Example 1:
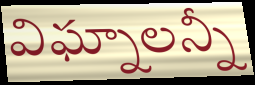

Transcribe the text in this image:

విఘ్నాలన్నీ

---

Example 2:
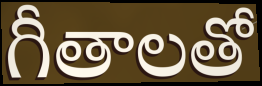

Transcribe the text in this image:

గీతాలతో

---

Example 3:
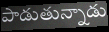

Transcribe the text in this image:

పాడుతున్నాడు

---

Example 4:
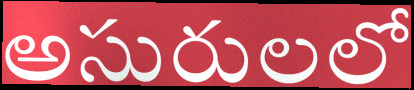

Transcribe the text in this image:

అసురులలో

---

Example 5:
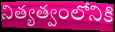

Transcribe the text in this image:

నిత్యత్వంలోనికి